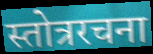
स्तोत्ररचना